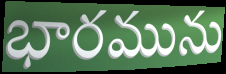
భారమును